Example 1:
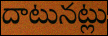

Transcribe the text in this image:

దాటునట్లు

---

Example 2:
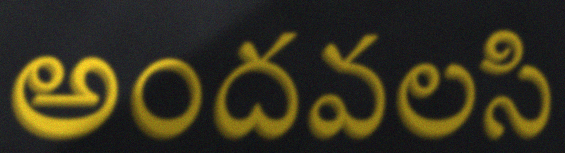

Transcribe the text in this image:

అందవలసి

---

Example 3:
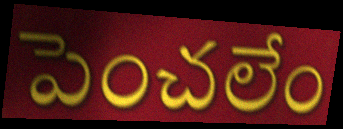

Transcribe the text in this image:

పెంచలేం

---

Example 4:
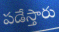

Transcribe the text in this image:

పడేస్తారు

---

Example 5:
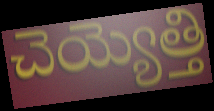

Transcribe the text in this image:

చెయ్యెత్తి